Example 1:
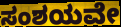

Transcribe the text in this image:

ಸಂಶಯವೇ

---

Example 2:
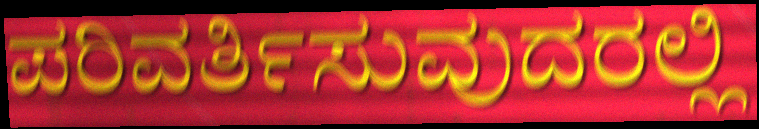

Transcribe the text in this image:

ಪರಿವರ್ತಿಸುವುದರಲ್ಲಿ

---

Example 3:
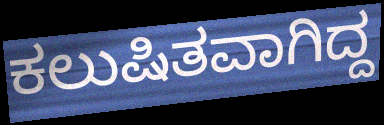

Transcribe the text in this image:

ಕಲುಷಿತವಾಗಿದ್ದ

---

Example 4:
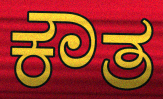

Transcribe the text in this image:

ಕೌತ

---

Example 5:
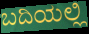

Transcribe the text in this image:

ಬದಿಯಲ್ಲಿ